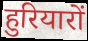
हुरियारों